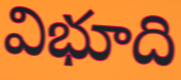
విభూది